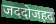
जददोजहद